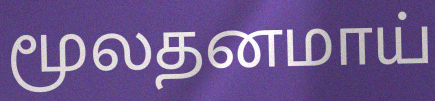
மூலதனமாய்